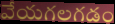
వేయగలగడం